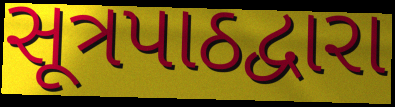
સૂત્રપાઠદ્વારા